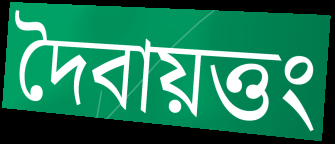
দৈবায়ত্তং